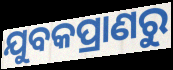
ଯୁବକପ୍ରାଣରୁ